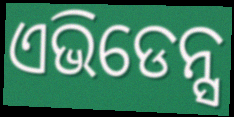
ଏଭିଡେନ୍ସ